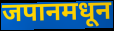
जपानमधून